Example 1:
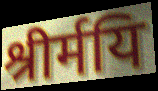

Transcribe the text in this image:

श्रीर्मयि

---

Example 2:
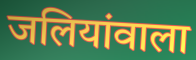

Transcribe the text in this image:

जलियांवाला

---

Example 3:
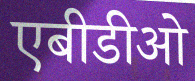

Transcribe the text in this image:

एबीडीओ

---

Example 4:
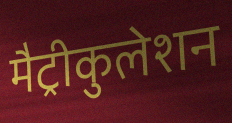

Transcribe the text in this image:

मैट्रीकुलेशन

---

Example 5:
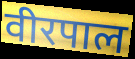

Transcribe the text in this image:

वीरपाल